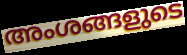
അംശങ്ങളുടെ